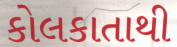
કોલકાતાથી